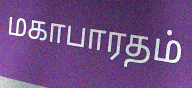
மகாபாரதம்